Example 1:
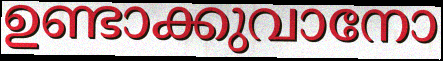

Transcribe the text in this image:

ഉണ്ടാക്കുവാനോ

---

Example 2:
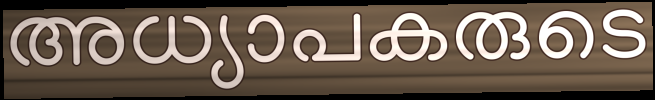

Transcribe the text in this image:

അധ്യാപകരുടെ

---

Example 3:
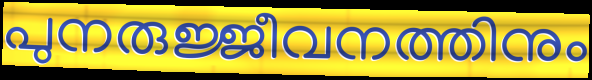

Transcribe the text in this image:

പുനരുജ്ജീവനത്തിനും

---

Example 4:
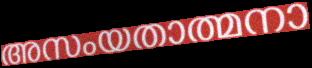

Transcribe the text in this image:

അസംയതാത്മനാ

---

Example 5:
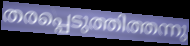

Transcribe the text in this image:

തരപ്പെടുത്തിത്തന്നു